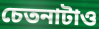
চেতনাটাও